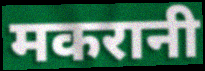
मकरानी